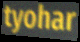
tyohar